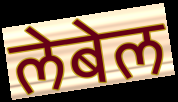
लेबेल